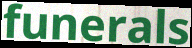
funerals